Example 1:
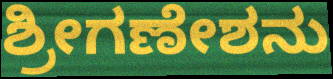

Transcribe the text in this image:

ಶ್ರೀಗಣೇಶನು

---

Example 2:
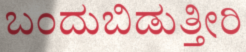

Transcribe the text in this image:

ಬಂದುಬಿಡುತ್ತೀರಿ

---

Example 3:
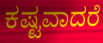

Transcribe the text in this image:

ಕಷ್ಟವಾದರೆ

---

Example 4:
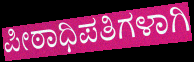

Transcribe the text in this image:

ಪೀಠಾಧಿಪತಿಗಳಾಗಿ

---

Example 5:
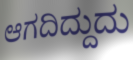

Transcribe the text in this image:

ಆಗದಿದ್ದುದು